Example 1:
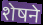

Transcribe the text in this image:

शेषने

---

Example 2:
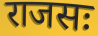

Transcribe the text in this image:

राजसः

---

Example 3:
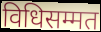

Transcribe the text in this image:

विधिसम्मत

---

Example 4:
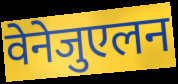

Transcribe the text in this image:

वेनेजुएलन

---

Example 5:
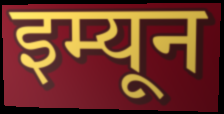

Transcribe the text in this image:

इम्‍यून